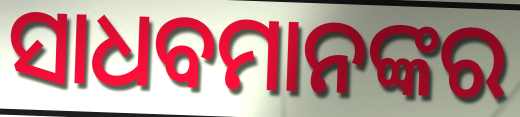
ସାଧବମାନଙ୍କର